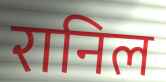
रानिल